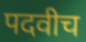
पदवीच